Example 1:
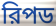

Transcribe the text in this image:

রিপড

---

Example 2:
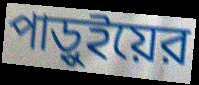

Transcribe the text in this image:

পাড়ুইয়ের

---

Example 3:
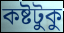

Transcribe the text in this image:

কষ্টটুকু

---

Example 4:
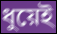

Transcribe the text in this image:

ধুয়েই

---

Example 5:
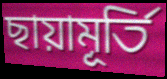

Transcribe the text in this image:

ছায়ামূর্তি